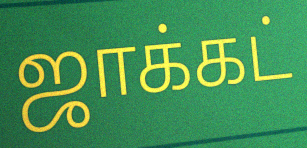
ஜாக்கட்